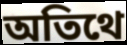
অতিথে